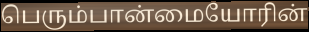
பெரும்பான்மையோரின்